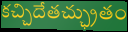
కచ్చిదేతచ్ఛ్రుతం